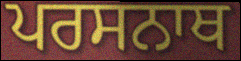
ਪਰਸਨਾਥ